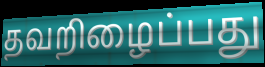
தவறிழைப்பது